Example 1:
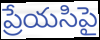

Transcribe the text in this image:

ప్రేయసిపై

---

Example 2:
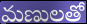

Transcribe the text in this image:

మణులతో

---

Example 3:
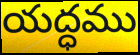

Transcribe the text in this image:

యద్ధము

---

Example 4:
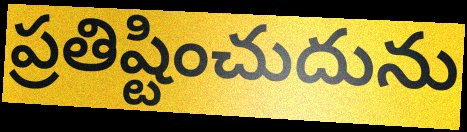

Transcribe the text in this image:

ప్రతిష్టించుదును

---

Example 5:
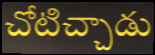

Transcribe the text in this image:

చోటిచ్చాడు